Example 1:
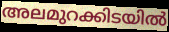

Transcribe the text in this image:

അലമുറക്കിടയിൽ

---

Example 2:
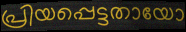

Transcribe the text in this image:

പ്രിയപ്പെട്ടതായോ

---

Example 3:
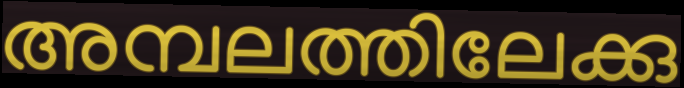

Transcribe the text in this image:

അമ്പലത്തിലേക്കു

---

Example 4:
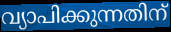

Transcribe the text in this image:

വ്യാപിക്കുന്നതിന്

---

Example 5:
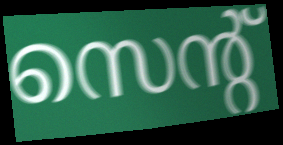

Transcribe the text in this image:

സെന്റ്